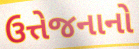
ઉત્તેજનાનો